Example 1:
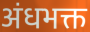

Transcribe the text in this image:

अंधभक्त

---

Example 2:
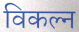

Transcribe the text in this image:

विकल्न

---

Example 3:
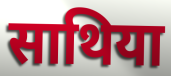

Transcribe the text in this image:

साथिया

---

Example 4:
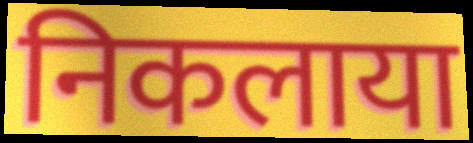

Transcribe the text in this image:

निकलाया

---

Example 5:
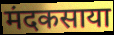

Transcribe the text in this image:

मंदकसाया